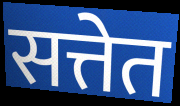
सत्तेत